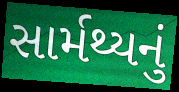
સાર્મથ્યનું